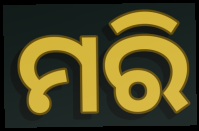
ମରି